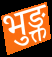
भुङ्क्त